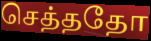
செத்ததோ